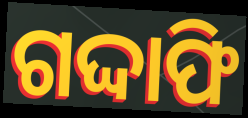
ଗଦ୍ଦାଫି